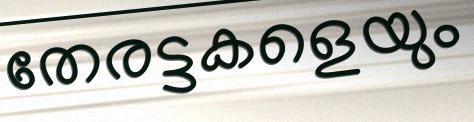
തേരട്ടകളെയും